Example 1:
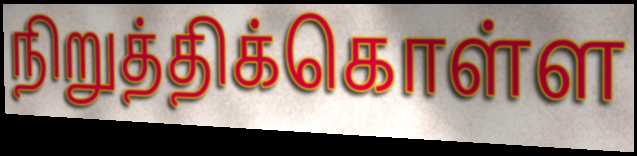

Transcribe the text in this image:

நிறுத்திக்கொள்ள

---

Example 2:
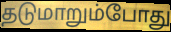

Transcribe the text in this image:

தடுமாறும்போது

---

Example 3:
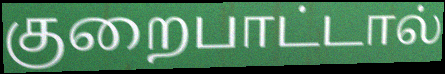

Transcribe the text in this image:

குறைபாட்டால்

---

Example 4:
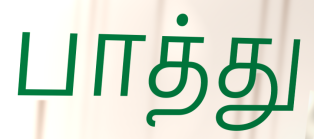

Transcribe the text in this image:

பாத்து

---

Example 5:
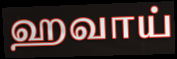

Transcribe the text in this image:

ஹவாய்